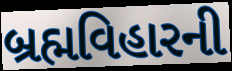
બ્રહ્મવિહારની